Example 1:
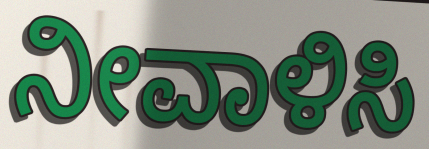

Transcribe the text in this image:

ನೀವಾಳಿಸಿ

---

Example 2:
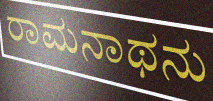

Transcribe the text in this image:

ರಾಮನಾಥನು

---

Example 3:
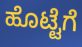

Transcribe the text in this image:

ಹೊಟ್ಟೆಗೆ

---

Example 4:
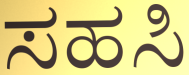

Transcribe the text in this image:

ಸಹಸಿ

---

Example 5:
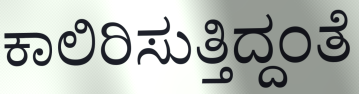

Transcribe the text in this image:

ಕಾಲಿರಿಸುತ್ತಿದ್ದಂತೆ